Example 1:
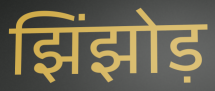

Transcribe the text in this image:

झिंझोड़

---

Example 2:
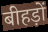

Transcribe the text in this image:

बीहड़ों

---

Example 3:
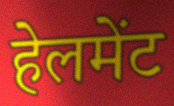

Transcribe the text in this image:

हेलमेंट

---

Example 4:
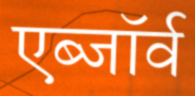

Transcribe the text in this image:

एब्जॉर्व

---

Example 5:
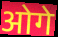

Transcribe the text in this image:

ओगे